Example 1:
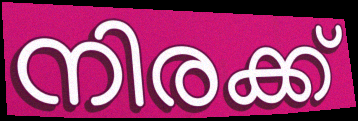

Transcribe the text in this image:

നിരക്ക്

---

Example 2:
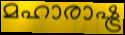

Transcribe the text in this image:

മഹാരാഷ്ട്ര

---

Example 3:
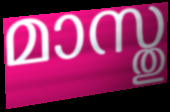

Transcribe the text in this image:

മാസ്തു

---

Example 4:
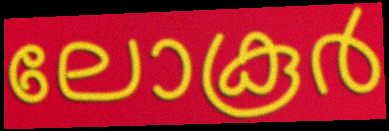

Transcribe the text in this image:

ലോകൂർ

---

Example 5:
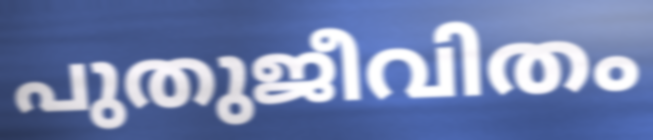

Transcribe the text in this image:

പുതുജീവിതം